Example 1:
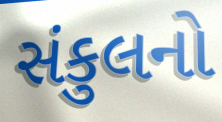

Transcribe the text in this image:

સંકુલનો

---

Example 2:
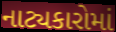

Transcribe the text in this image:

નાટ્યકારોમાં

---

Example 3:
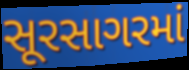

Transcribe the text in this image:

સૂરસાગરમાં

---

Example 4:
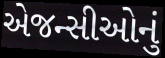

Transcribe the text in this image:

એજન્સીઓનું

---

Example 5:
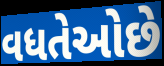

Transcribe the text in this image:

વધતેઓછે